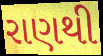
રાણથી